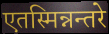
एतस्मिन्नन्तरे